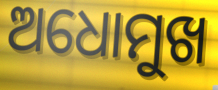
ଅଧୋମୁଖ